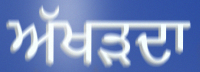
ਅੱਖੜਦਾ